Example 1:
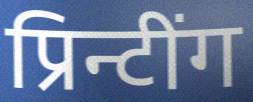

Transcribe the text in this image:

प्रिन्टींग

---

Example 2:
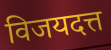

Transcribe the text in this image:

विजयदत्त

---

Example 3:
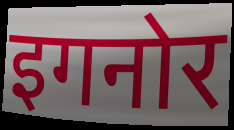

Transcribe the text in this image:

इगनोर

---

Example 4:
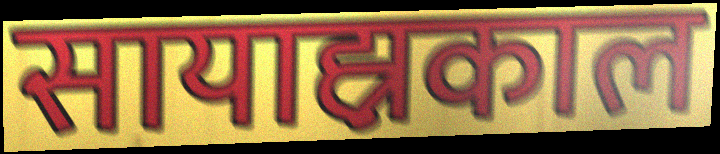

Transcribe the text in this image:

सायाह्नकाल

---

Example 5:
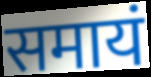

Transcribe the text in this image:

समायं